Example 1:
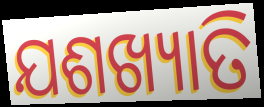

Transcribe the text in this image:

ଯଶଖ୍ୟାତି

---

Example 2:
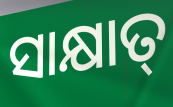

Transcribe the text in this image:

ସାକ୍ଷାତ୍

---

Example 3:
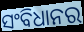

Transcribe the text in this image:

ସଂବିଧାନର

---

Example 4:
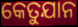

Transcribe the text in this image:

କେତୁଯାନ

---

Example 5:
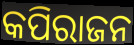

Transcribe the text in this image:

କପିରାଜନ